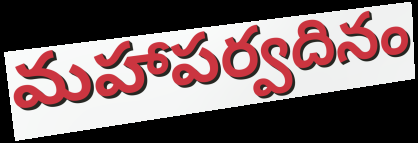
మహాపర్వదినం